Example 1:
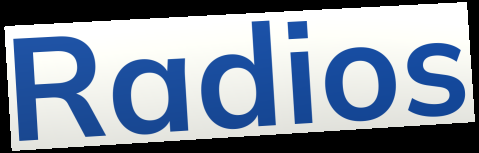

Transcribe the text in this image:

Radios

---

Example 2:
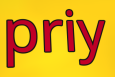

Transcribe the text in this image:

priy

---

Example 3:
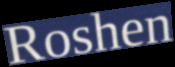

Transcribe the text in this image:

Roshen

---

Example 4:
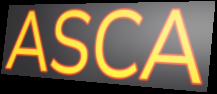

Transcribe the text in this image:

ASCA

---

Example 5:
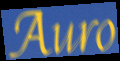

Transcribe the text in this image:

Auro